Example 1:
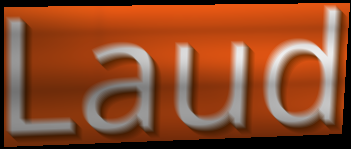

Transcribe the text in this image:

Laud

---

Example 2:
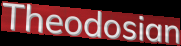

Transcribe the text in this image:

Theodosian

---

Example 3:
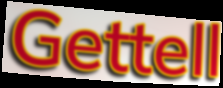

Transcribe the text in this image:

Gettell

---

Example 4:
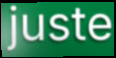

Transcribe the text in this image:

juste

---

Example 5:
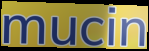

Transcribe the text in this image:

mucin